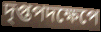
দৃপ্তপদক্ষেপে